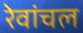
रेवांचल